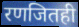
रणजितही